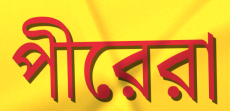
পীরেরা